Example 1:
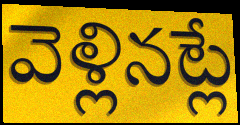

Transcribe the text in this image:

వెళ్లినట్లే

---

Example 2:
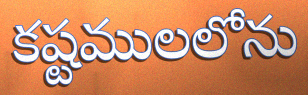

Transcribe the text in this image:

కష్టములలోను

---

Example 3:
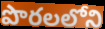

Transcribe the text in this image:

పొరలలోని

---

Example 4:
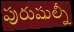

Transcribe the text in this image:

పురుషుల్నీ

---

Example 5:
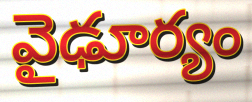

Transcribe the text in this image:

వైఢూర్యం